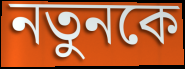
নতুনকে